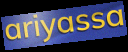
ariyassa